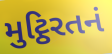
મુટ્ઠિરતનં